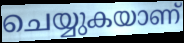
ചെയ്യുകയാണ്